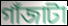
গাঁজাটা